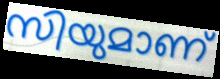
സിയുമാണ്